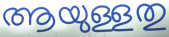
ആയുള്ളതു